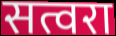
सत्वरा